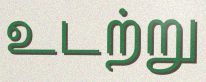
உடற்று